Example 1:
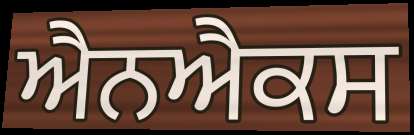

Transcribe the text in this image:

ਐਨਐਕਸ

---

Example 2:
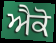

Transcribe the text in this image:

ਐਕੋ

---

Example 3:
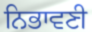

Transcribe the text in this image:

ਨਿਭਾਵਣੀ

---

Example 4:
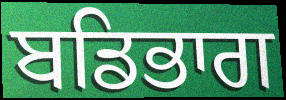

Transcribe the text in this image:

ਬਡਿਭਾਗ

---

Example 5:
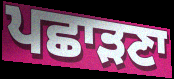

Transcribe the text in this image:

ਪਛਾੜਣਾ